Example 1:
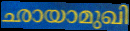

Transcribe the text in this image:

ഛായാമുഖി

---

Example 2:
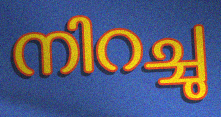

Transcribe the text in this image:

നിറച്ചു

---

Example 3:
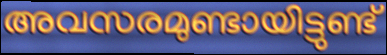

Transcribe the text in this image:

അവസരമുണ്ടായിട്ടുണ്ട്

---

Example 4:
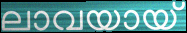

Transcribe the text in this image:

ലാവയായ്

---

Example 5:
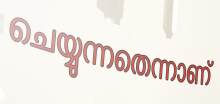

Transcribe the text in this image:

ചെയ്യുന്നതെന്നാണ്